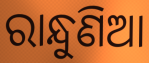
ରାନ୍ଧୁଣିଆ